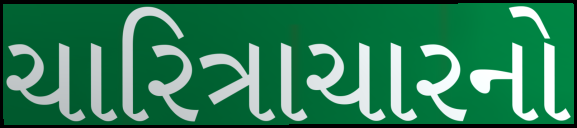
ચારિત્રાચારનો